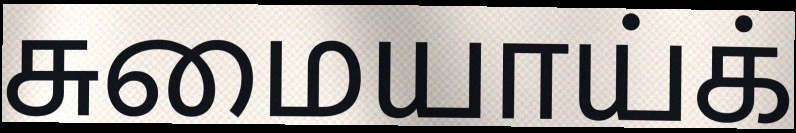
சுமையாய்க்